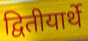
द्वितीयार्थे